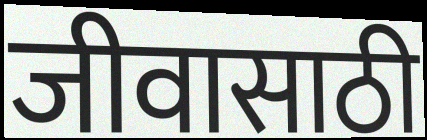
जीवासाठी